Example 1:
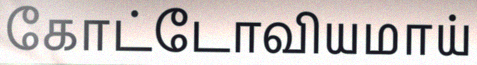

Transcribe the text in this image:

கோட்டோவியமாய்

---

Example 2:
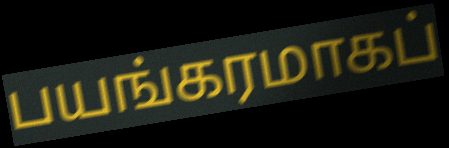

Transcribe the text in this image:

பயங்கரமாகப்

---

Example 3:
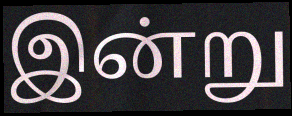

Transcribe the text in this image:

இன்று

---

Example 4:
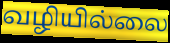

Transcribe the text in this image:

வழியில்லை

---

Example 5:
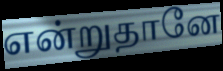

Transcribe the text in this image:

என்றுதானே